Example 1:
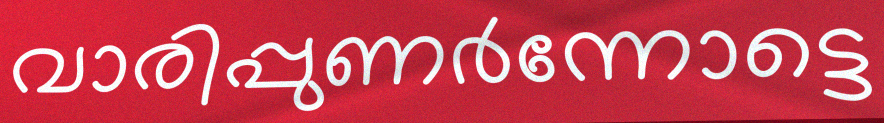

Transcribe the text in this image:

വാരിപ്പുണർന്നോട്ടെ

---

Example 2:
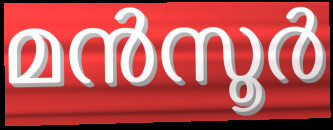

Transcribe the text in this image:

മൻസൂർ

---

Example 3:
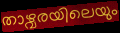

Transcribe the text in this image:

താഴ്വരയിലെയും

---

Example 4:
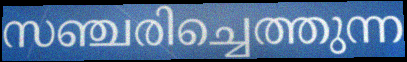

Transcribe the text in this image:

സഞ്ചരിച്ചെത്തുന്ന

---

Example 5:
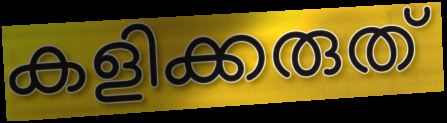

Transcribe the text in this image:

കളിക്കരുത്